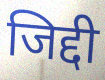
जिद्दी